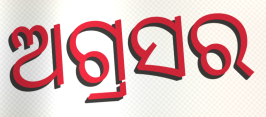
ଅଗ୍ରସର